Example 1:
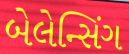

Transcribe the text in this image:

બેલેન્સિંગ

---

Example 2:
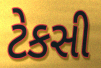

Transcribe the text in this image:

ટેકસી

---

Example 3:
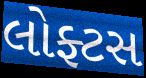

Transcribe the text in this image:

લોફ્ટસ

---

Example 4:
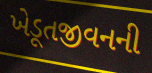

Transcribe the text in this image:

ખેડૂતજીવનની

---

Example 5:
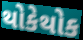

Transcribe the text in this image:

થોકેથોક